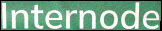
Internode